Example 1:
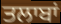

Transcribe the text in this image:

ਤਲਾਬਾਂ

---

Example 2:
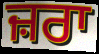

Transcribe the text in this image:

ਜ਼ਰਾ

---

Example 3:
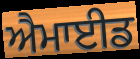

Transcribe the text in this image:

ਐਮਾਈਡ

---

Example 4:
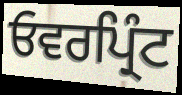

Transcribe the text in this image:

ਓਵਰਪ੍ਰਿੰਟ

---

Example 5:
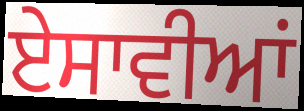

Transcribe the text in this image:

ਏਸਾਵੀਆਂ